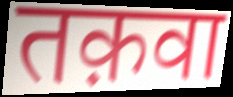
तक़वा